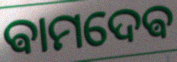
ଵାମଦେଵ